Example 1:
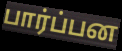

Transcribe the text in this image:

பார்ப்பன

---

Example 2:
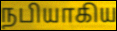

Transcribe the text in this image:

நபியாகிய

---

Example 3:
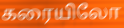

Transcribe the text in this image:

கரையிலோ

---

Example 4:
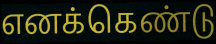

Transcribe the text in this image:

எனக்கெண்டு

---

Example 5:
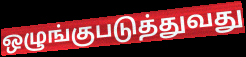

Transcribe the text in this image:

ஒழுங்குபடுத்துவது